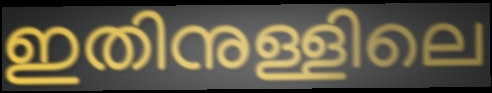
ഇതിനുള്ളിലെ